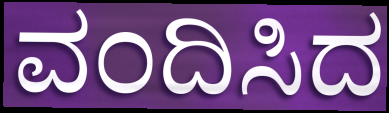
ವಂದಿಸಿದ